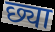
छ्या